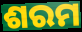
ଶରମ